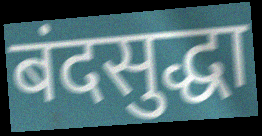
बंदसुद्धा